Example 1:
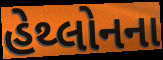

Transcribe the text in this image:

હેથ્લોનના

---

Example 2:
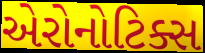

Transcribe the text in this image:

એરોનોટિક્સ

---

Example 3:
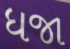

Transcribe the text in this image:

ધજા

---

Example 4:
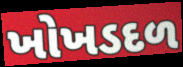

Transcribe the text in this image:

ખોખડદળ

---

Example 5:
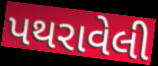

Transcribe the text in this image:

પથરાવેલી